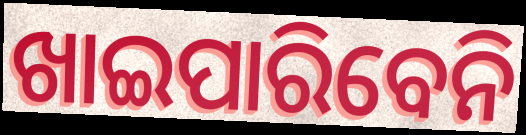
ଖାଇପାରିବେନି